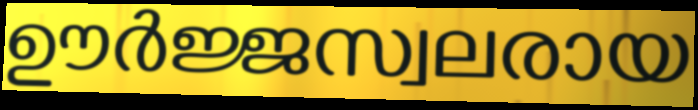
ഊർജ്ജസ്വലരായ